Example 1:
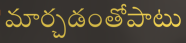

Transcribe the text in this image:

మార్చడంతోపాటు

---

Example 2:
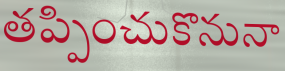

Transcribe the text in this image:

తప్పించుకొనునా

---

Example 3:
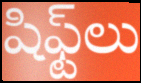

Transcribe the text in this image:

షిఫ్ట్‌లు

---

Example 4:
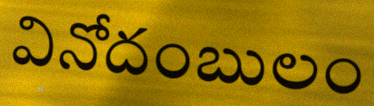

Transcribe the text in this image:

వినోదంబులం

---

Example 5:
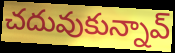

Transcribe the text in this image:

చదువుకున్నావ్